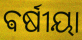
ଵର୍ଷୀୟା